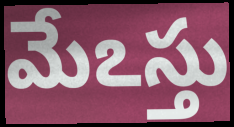
మేఽస్తు